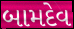
બામદેવ